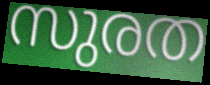
സുരത